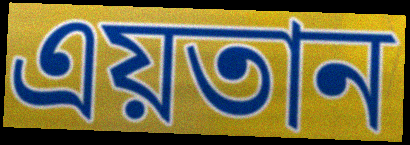
এয়তান